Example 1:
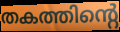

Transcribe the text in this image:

തകത്തിന്റെ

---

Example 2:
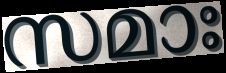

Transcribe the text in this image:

സമാഃ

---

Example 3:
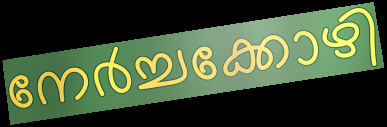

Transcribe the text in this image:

നേർച്ചക്കോഴി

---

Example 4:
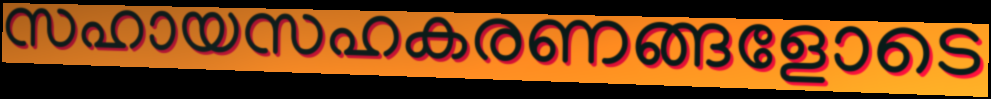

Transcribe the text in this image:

സഹായസഹകരണങ്ങളോടെ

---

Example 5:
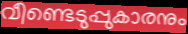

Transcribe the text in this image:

വീണ്ടെടുപ്പുകാരനും